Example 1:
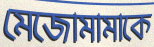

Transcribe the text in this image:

মেজোমামাকে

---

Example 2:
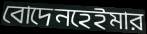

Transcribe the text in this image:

বোদেনহেইমার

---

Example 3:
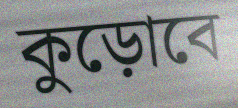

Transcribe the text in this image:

কুড়োবে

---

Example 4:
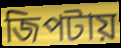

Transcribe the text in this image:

জিপটায়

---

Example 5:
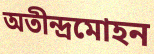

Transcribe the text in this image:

অতীন্দ্রমোহন